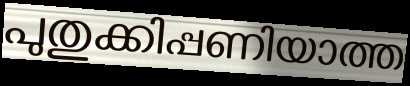
പുതുക്കിപ്പണിയാത്ത